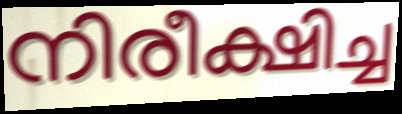
നിരീക്ഷിച്ച